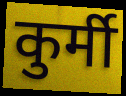
कुर्मी